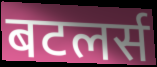
बटलर्स